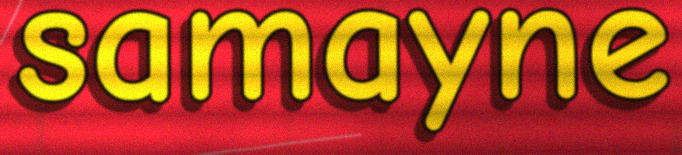
samayne